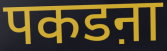
पकडऩा